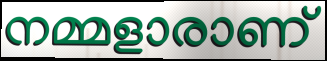
നമ്മളാരാണ്